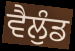
ਵੈਲੁੰਡ